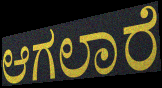
ಆಗಲಾರೆ